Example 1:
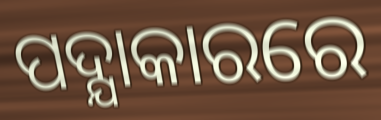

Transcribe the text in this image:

ପଦ୍ଯାକାରରେ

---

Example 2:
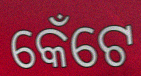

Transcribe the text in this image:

କେଁଟେ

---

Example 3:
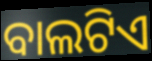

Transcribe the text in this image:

ବାଲଟିଏ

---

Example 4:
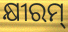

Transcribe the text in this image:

କ୍ଷୀରମ୍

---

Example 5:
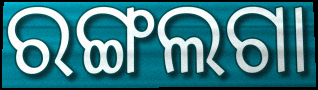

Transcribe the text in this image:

ରଙ୍ଗଲଗା